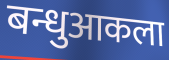
बन्धुआकला